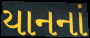
યાનનાં